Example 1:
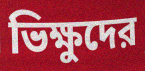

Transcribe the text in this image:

ভিক্ষুদের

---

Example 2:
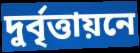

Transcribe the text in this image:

দুর্বৃত্তায়নে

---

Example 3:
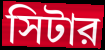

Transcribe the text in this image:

সিটার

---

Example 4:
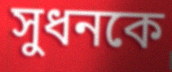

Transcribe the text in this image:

সুধনকে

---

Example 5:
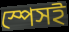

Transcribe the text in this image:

স্পেসই